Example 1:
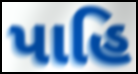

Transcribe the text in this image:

પાહિ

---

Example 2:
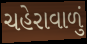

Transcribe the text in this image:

ચહેરાવાળું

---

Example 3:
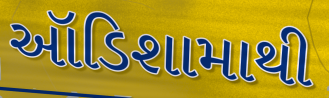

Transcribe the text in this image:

ઑડિશામાથી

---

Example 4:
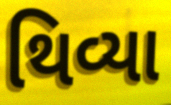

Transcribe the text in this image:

થિવ્યા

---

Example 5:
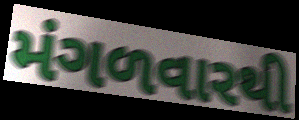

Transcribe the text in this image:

મંગળવારથી